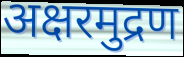
अक्षरमुद्रण